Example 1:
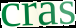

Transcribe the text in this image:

cras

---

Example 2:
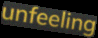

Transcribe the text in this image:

unfeeling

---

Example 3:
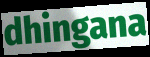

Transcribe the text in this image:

dhingana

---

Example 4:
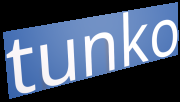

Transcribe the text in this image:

tunko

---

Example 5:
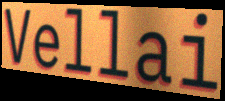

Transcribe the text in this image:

Vellai